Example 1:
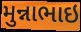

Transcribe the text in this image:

મુન્નાભાઇ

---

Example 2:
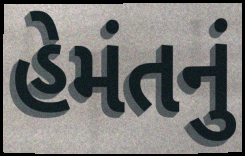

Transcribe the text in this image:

હેમંતનું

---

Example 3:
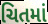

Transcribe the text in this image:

ચિતમાં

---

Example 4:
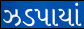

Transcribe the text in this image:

ઝડપાયાં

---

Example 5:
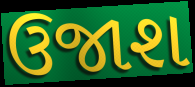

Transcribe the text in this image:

ઉજાશ